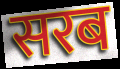
सरब